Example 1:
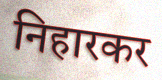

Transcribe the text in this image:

निहारकर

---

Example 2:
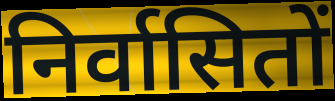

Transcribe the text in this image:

निर्वासितों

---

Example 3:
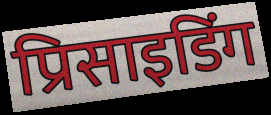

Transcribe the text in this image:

प्रिसाइडिंग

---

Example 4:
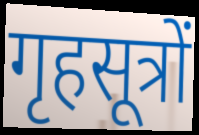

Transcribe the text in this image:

गृहसूत्रों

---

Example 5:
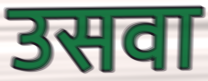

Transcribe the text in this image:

उसवा